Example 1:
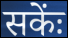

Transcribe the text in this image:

सकेंः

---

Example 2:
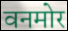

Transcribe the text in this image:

वनमोर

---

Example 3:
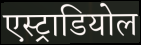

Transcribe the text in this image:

एस्ट्राडियोल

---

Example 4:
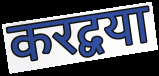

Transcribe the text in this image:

करद्वया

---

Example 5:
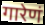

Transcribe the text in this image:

गारेणं